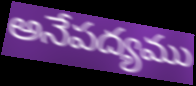
అనేపద్యము